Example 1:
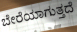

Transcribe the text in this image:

ಬೇರೆಯಾಗುತ್ತದೆ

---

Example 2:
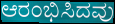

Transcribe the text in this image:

ಆರಂಭಿಸಿದವು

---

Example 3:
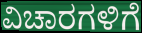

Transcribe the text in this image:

ವಿಚಾರಗಳಿಗೆ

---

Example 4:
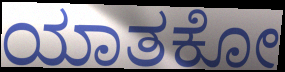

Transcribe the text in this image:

ಯಾತಕೋ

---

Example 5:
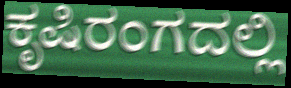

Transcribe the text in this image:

ಕೃಷಿರಂಗದಲ್ಲಿ